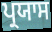
ਪ੍ਰਯਾਸ